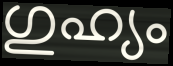
ഗുഹ്യം